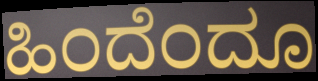
ಹಿಂದೆಂದೂ